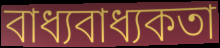
বাধ্যবাধ্যকতা